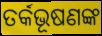
ତର୍କଭୂଷଣଙ୍କ